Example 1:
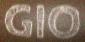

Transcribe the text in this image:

GIO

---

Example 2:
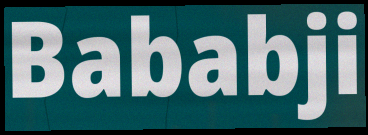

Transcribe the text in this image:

Bababji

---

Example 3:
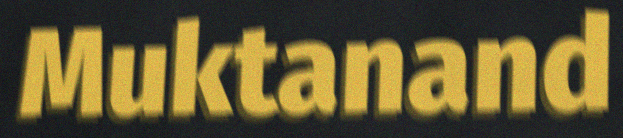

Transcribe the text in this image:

Muktanand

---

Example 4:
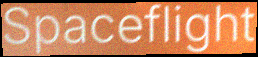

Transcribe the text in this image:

Spaceflight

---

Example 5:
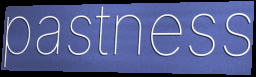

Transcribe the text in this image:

pastness